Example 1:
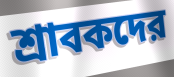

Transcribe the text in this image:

শ্রাবকদের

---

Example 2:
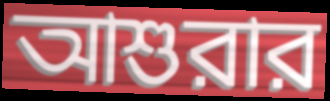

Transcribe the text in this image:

আশুরার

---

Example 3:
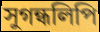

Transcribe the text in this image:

সুগন্ধলিপি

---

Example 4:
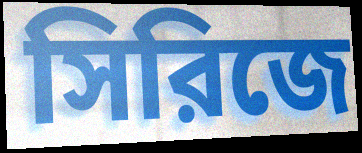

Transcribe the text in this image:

সিরিজে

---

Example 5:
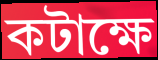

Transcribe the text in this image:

কটাক্ষে